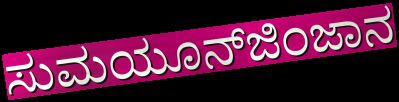
ಸುಮಯೂನ್‍ಜಿಂಜಾನ